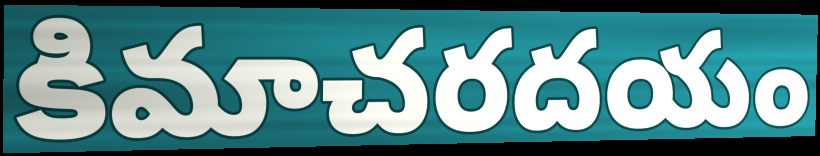
కిమాచరదయం